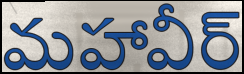
మహావీర్